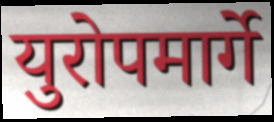
युरोपमार्गे